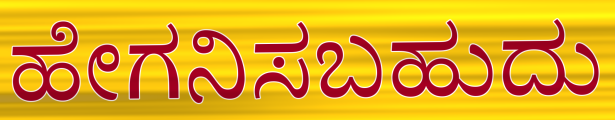
ಹೇಗನಿಸಬಹುದು